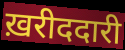
ख़रीददारी